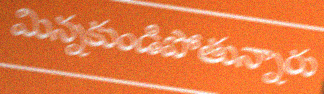
మిన్నకుండిపోతున్నారు